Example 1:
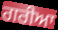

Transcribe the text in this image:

ਗਰੀਆ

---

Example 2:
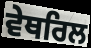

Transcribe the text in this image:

ਵੇਥਰਿਲ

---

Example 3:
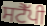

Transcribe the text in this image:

ਸਟੈੱਪੀ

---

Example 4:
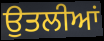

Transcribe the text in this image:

ਉਤਲੀਆਂ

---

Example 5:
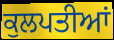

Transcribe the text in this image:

ਕੁਲਪਤੀਆਂ